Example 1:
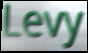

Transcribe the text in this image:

Levy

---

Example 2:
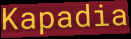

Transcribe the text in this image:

Kapadia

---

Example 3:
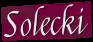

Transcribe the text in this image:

Solecki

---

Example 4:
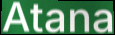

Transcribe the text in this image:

Atana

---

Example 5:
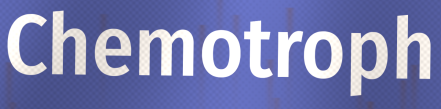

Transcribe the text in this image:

Chemotroph